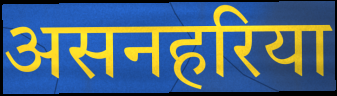
असनहरिया